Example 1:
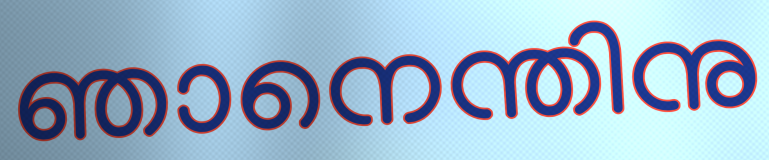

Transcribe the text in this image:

ഞാനെന്തിനു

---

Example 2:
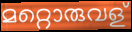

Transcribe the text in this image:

മറ്റൊരുവള്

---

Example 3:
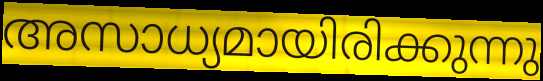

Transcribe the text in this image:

അസാധ്യമായിരിക്കുന്നു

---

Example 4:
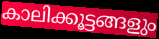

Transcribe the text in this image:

കാലിക്കൂട്ടങ്ങളും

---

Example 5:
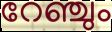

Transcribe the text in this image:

റേഞ്ചും